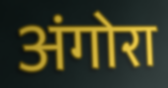
अंगोरा